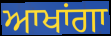
ਆਖਾਂਗਾ